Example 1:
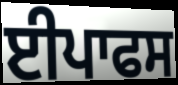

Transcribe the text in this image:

ਈਪਾਫਸ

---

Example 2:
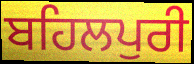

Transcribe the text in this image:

ਬਹਿਲਪੁਰੀ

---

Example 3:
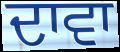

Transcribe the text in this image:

ਦਾਵਾ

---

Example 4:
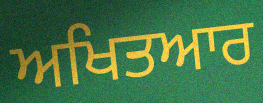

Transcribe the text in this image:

ਅਖਿਤਆਰ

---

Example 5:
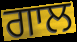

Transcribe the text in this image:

ਗਾਲ